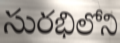
సురభిలోని